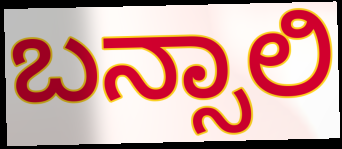
ಬನ್ಸಾಲಿ